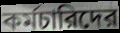
কর্মচারিদের